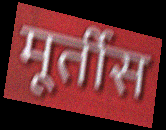
मूर्तीस